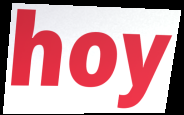
hoy